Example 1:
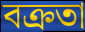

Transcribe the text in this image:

বক্ৰতা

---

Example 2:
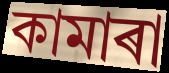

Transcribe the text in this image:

কামাৰা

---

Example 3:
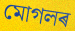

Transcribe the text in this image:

মোগলৰ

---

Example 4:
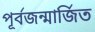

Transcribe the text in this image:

পূৰ্বজন্মাৰ্জিত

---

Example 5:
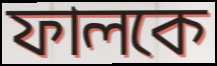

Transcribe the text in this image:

ফালকে